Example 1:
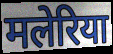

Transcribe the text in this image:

मलेरिया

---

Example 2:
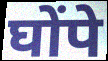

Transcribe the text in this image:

घोंपे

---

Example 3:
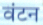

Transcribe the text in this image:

वंटन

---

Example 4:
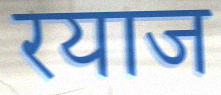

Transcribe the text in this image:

रयाज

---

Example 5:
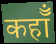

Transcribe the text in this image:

कहॉँ